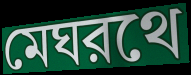
মেঘরথে